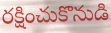
రక్షించుకొనుడి